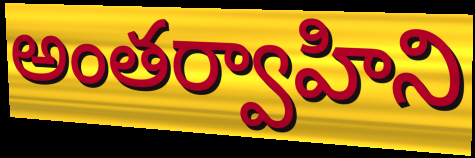
అంతర్వాహిని